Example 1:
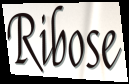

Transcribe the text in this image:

Ribose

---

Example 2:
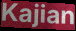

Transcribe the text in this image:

Kajian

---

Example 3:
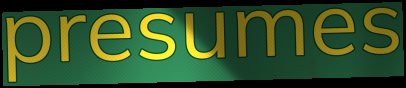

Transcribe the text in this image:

presumes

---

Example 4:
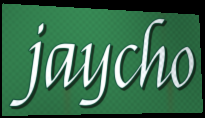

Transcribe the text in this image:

jaycho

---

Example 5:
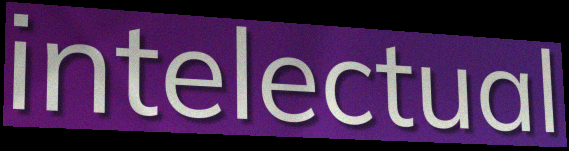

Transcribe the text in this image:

intelectual